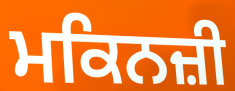
ਮਕਿਨਜ਼ੀ